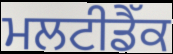
ਮਲਟੀਡੈੱਕ